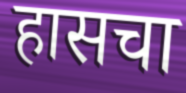
हासचा